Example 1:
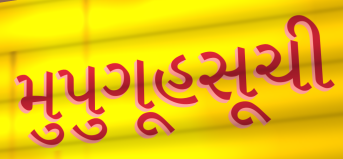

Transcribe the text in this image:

મુપુગૂહસૂચી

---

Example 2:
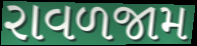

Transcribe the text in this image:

રાવળજામ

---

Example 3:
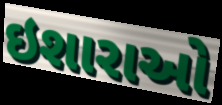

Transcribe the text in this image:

ઇશારાઓ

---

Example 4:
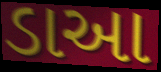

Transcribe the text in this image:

ડાઆ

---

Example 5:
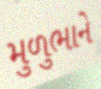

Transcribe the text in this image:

મુળુભાને